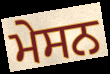
ਮੇਸਨ